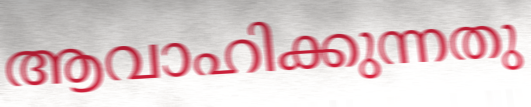
ആവാഹിക്കുന്നതു